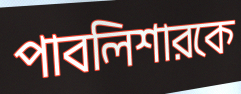
পাবলিশারকে